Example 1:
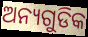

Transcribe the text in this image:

ଅନ୍ୟଗୁଡିକ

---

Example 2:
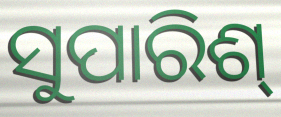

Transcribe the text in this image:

ସୁପାରିଶ୍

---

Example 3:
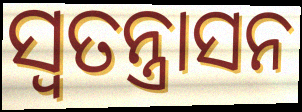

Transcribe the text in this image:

ସ୍ଵତନ୍ତ୍ରାସନ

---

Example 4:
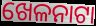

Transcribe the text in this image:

ଖେଳନାଟା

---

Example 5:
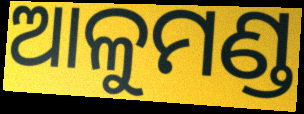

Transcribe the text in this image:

ଆଳୁମଣ୍ଡ